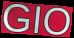
GIO